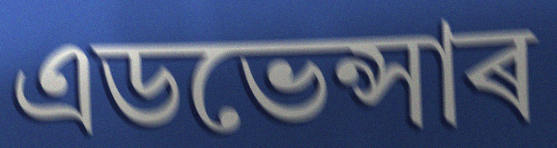
এডভেন্সাৰ